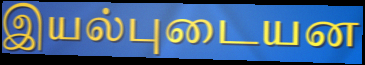
இயல்புடையன